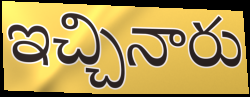
ఇచ్చినారు